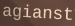
agianst